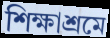
শিক্ষাশ্রমে